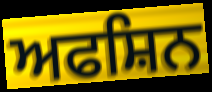
ਅਫਸ਼ਿਨ